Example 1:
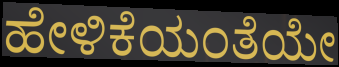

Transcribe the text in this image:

ಹೇಳಿಕೆಯಂತೆಯೇ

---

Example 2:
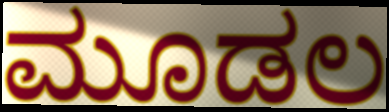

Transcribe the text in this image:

ಮೂಡಲ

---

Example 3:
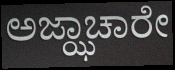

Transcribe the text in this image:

ಅಜ್ಝಾಚಾರೇ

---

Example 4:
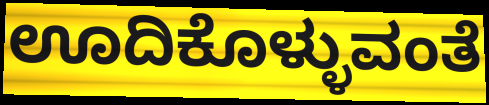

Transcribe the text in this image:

ಊದಿಕೊಳ್ಳುವಂತೆ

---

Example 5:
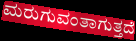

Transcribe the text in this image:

ಮರುಗುವಂತಾಗುತ್ತದೆ